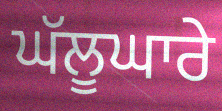
ਘੱਲੂਘਾਰੇ